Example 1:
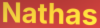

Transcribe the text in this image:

Nathas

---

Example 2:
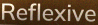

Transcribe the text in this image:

Reflexive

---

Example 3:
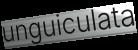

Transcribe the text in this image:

unguiculata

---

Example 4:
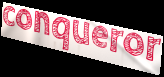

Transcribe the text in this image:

conqueror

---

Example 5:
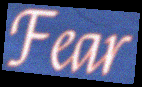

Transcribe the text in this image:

Fear